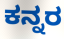
ಕನ್ನರ